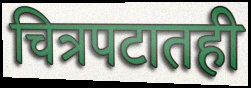
चित्रपटातही